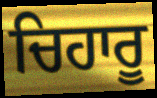
ਚਿਹਾਰੂ